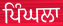
ਪਿੰਘਲਾ